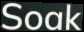
Soak